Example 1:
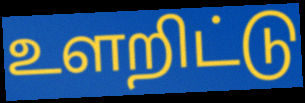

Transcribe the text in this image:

உளறிட்டு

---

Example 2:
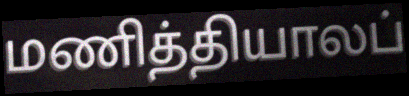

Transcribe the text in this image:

மணித்தியாலப்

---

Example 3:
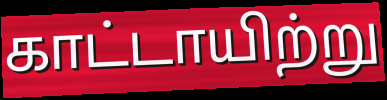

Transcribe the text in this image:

காட்டாயிற்று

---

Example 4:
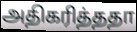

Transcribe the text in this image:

அதிகரித்ததா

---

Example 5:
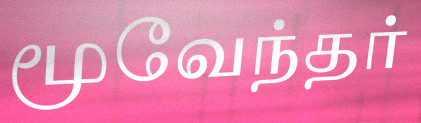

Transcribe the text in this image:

மூவேந்தர்